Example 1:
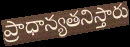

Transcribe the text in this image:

ప్రాధాన్యతనిస్తారు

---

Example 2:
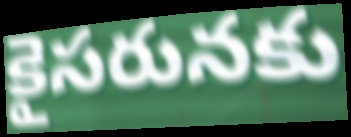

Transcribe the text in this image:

కైసరునకు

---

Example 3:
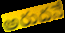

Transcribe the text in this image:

అరుదనే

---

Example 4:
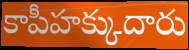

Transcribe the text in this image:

కాపీహక్కుదారు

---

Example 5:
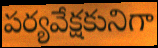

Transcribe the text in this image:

పర్యవేక్షకునిగా